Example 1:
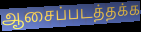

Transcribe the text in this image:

ஆசைப்படத்தக்க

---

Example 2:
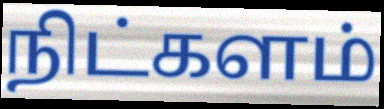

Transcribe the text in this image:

நிட்களம்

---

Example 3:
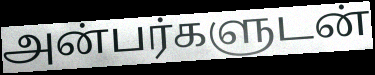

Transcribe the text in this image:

அன்பர்களுடன்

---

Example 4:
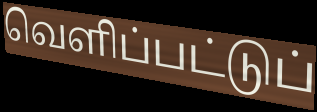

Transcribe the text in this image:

வெளிப்பட்டுப்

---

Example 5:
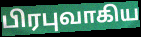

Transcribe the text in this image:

பிரபுவாகிய